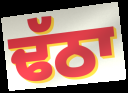
ਢੱਠਾ